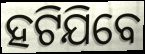
ହଟିଯିବେ